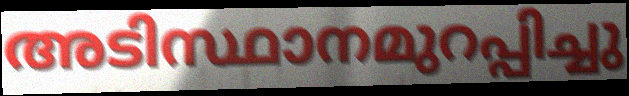
അടിസ്ഥാനമുറപ്പിച്ചു